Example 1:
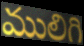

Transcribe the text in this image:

ములిగి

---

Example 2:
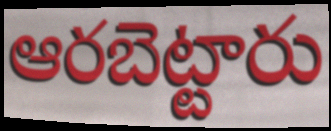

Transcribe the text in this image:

ఆరబెట్టారు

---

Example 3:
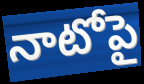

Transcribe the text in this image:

నాటోపై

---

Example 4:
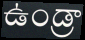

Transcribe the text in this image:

ఉండ్రా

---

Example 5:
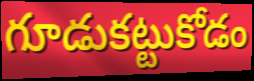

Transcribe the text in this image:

గూడుకట్టుకోడం